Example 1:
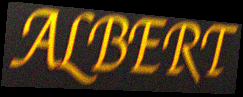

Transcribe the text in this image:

ALBERT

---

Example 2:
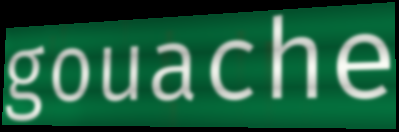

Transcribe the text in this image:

gouache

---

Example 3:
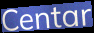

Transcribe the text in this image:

Centar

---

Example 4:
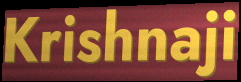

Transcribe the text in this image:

Krishnaji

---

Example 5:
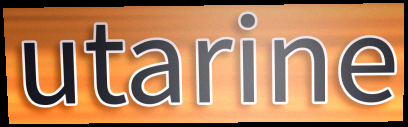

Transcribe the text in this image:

utarine